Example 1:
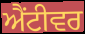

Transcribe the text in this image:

ਐਂਟੀਵਰ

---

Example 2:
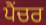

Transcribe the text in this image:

ਪੈਂਚਰ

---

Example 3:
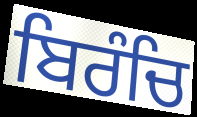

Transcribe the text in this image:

ਬਿਰੰਚਿ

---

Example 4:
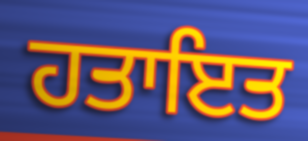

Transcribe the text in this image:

ਹਤਾਇਤ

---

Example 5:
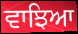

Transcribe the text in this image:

ਵਾਝਿਆ